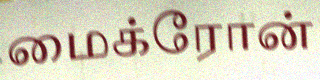
மைக்ரோன்